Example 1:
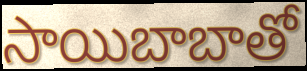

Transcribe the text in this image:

సాయిబాబాతో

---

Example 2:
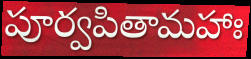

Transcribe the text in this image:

పూర్వపితామహాః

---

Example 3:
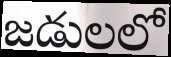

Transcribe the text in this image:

జడులలో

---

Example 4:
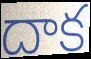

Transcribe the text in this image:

దాక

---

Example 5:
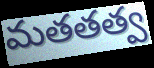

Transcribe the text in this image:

మతతత్వ